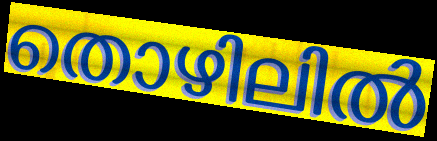
തൊഴിലിൽ